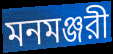
মনমঞ্জরী